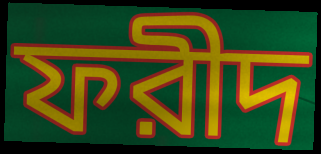
ফরীদ